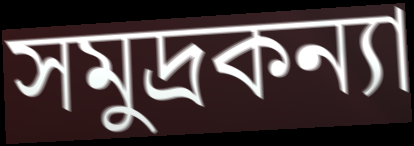
সমুদ্রকন্যা